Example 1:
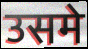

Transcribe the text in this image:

उसमे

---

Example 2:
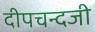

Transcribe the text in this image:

दीपचन्दजी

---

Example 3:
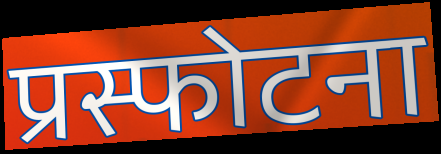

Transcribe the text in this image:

प्रस्फोटना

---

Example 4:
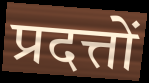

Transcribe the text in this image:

प्रदत्तों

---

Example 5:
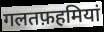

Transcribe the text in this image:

गलतफ़हमियां